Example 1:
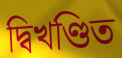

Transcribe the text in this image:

দ্বিখণ্ডিত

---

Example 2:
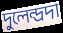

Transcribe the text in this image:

দুলেন্দ্রদা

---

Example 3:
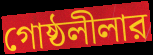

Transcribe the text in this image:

গোষ্ঠলীলার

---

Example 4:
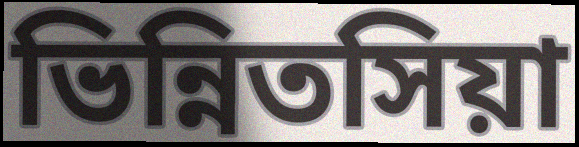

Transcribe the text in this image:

ভিন্নিতসিয়া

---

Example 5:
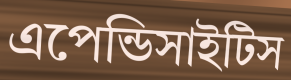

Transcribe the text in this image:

এপেন্ডিসাইটিস